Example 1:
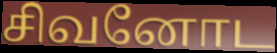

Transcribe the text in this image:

சிவனோட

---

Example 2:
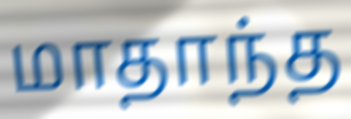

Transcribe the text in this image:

மாதாந்த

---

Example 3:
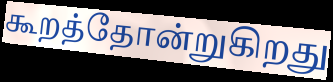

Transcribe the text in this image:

கூறத்தோன்றுகிறது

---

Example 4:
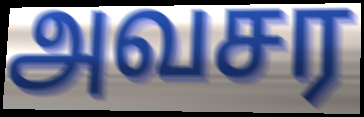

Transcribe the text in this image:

அவசர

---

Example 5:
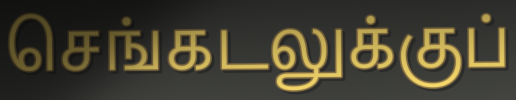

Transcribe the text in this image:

செங்கடலுக்குப்